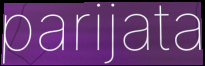
parijata